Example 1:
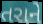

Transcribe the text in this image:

તરાને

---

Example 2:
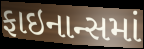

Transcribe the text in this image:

ફાઇનાન્સમાં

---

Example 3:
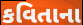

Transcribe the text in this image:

કવિતાના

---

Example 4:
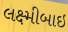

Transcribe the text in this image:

લક્ષ્મીબાઇ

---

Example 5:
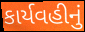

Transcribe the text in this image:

કાર્યવહીનું